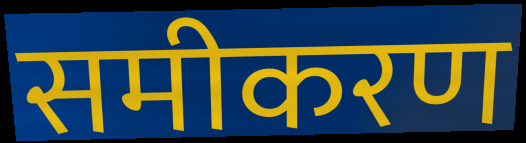
समीकरण